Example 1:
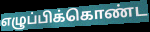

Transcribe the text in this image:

எழுப்பிக்கொண்ட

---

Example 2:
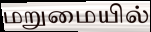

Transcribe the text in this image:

மறுமையில்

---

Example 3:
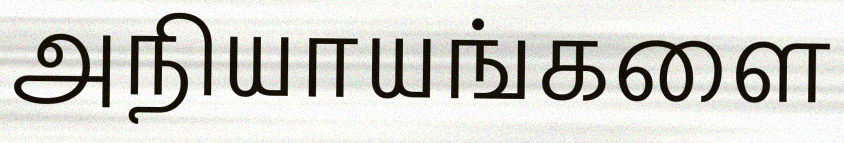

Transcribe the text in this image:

அநியாயங்களை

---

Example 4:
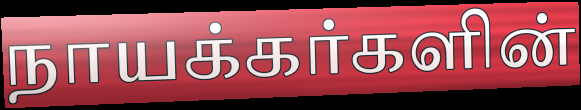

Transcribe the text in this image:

நாயக்கர்களின்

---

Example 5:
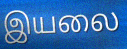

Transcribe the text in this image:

இயலை